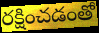
రక్షించడంతో